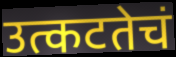
उत्कटतेचं